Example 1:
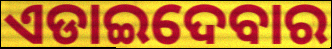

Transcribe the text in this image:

ଏଡାଇଦେବାର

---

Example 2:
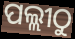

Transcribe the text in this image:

ପଲ୍ଲୀଠୁ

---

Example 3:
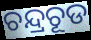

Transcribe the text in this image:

ଚନ୍ଦ୍ରଚୂଡ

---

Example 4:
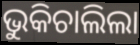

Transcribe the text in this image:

ଭୁକିଚାଲିଲା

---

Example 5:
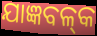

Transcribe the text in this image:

ଯାଜ୍ଞବଳ୍‌କ